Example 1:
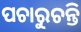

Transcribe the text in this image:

ପଚାରୁଚନ୍ତି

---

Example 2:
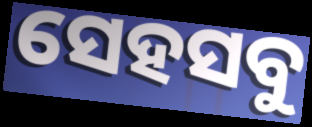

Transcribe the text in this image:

ସେହସବୁ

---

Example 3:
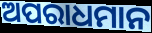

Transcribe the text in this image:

ଅପରାଧମାନ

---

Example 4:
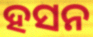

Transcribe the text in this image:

ହସନ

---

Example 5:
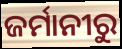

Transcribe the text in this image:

ଜର୍ମାନୀରୁ